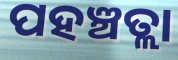
ପହଞ୍ଚତ୍ଲା